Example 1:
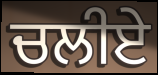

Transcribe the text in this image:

ਚਲੀਏ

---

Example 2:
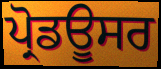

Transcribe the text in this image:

ਪ੍ਰੋਡਊਸਰ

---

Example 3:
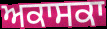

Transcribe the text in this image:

ਅਕਾਸਕਾ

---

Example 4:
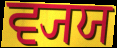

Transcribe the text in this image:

ਵ੍ਯਯ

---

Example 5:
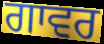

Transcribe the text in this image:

ਗਾਵਰ